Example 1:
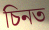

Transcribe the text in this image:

চিনত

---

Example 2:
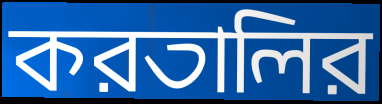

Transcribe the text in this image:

করতালির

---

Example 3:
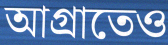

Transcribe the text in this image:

আগ্রাতেও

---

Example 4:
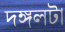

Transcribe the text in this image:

দঙ্গলটা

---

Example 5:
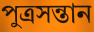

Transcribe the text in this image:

পুত্রসন্তান